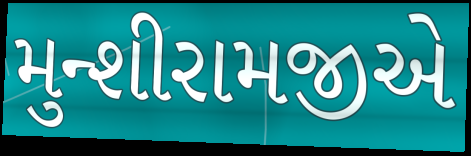
મુન્શીરામજીએ